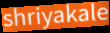
shriyakale